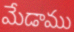
మేడాము